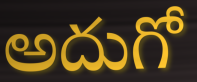
అదుగో